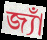
জ্যাঁ